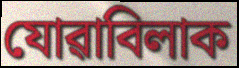
যোৱাবিলাক